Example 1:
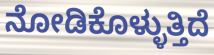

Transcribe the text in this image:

ನೋಡಿಕೊಳ್ಳುತ್ತಿದೆ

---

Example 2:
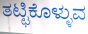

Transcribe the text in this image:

ತಟ್ಟಿಕೊಳ್ಳುವ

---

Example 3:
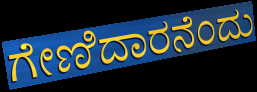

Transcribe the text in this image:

ಗೇಣಿದಾರನೆಂದು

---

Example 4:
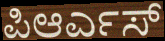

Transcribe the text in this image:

ಪಿಆರ್ಎಸ್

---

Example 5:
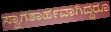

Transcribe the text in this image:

ಸ್ವಾಗತಾರ್ಹವಾಗಿದ್ದರೂ